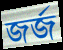
জর্জ